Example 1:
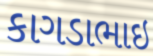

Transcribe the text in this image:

કાગડાભાઇ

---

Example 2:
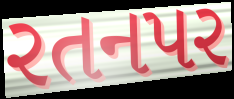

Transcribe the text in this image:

રતનપર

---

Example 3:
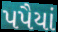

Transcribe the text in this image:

પપૈયાં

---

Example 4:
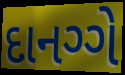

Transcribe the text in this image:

દાનગ્ગે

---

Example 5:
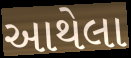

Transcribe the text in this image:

આથેલા